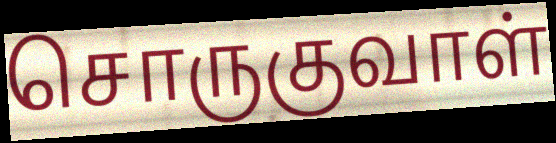
சொருகுவாள்